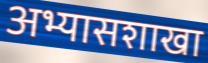
अभ्यासशाखा